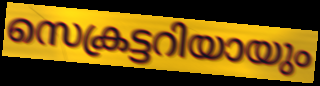
സെക്രട്ടറിയായും